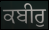
ਕਬੀਰੁ